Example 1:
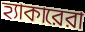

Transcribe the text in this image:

হ্যাকারেরা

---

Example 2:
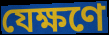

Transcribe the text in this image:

যেক্ষণে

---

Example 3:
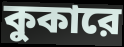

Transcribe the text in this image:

কুকারে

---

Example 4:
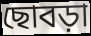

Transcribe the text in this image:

ছোবড়া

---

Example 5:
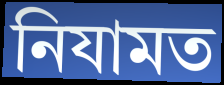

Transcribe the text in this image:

নিযামত